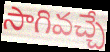
సాగివచ్చే